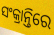
ସଂକ୍ରାନ୍ତିରେ